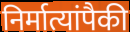
निर्मात्यांपैकी